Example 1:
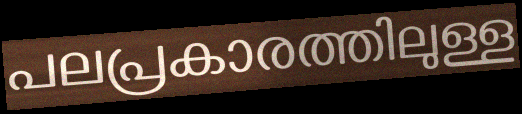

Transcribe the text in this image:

പലപ്രകാരത്തിലുള്ള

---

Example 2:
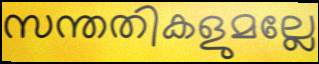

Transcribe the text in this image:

സന്തതികളുമല്ലേ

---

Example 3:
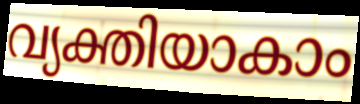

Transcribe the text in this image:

വ്യക്തിയാകാം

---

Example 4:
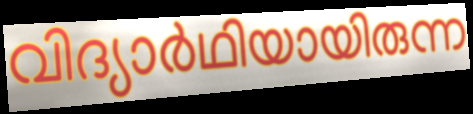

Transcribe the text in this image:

വിദ്യാർഥിയായിരുന്ന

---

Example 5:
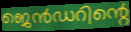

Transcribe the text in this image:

ജെൻഡറിന്റെ